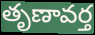
తృణావర్త